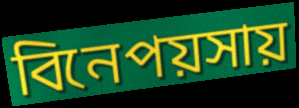
বিনেপয়সায়